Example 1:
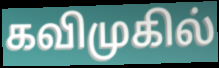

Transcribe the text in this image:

கவிமுகில்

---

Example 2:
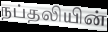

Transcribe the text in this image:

நப்தலியின்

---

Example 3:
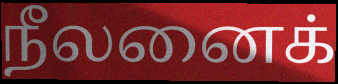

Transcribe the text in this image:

நீலனைக்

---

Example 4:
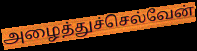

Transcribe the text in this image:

அழைத்துச்செல்வேன்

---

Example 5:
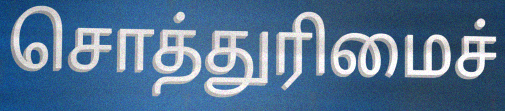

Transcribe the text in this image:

சொத்துரிமைச்